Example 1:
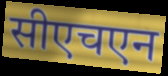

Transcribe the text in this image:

सीएचएन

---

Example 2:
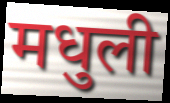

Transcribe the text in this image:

मधुली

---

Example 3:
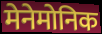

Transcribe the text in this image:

मेनेमोनिक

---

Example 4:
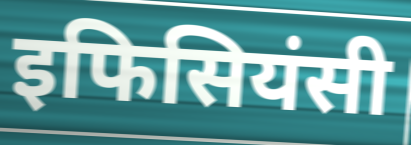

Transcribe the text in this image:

इफिसियंसी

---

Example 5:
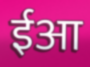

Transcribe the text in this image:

ईआ